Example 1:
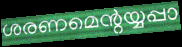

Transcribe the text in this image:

ശരണമെന്റയ്യപ്പാ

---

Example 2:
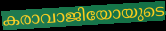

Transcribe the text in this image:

കരാവാജിയോയുടെ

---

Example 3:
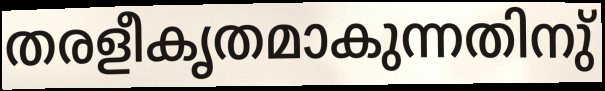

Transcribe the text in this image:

തരളീകൃതമാകുന്നതിനു്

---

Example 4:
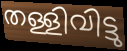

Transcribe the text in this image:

തള്ളിവിട്ടു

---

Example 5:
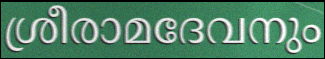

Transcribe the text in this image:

ശ്രീരാമദേവനും